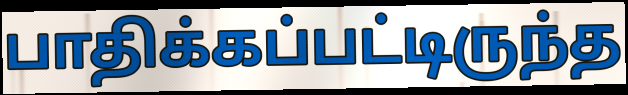
பாதிக்கப்பட்டிருந்த